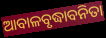
ଆବାଳବୃଦ୍ଧାବନିତା